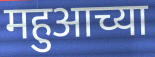
महुआच्या